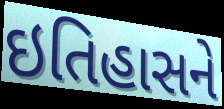
ઇતિહાસને